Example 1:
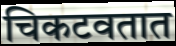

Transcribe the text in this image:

चिकटवतात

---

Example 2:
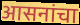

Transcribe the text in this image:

आसनांचा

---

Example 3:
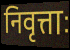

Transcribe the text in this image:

निवृत्ताः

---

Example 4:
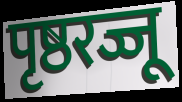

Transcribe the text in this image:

पृष्ठरज्जू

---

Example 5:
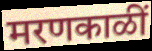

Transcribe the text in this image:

मरणकाळीं